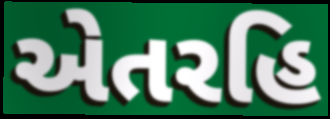
એતરહિ